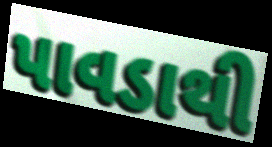
પાવડાથી